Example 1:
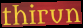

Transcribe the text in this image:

thirun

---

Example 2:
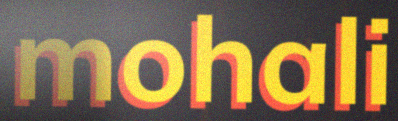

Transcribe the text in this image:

mohali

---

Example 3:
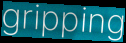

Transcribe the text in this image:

gripping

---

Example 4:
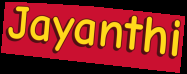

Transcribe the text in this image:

Jayanthi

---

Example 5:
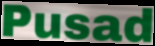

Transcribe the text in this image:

Pusad